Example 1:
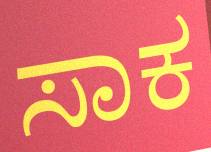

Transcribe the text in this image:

ಸಾಕ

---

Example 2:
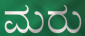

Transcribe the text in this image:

ಮರು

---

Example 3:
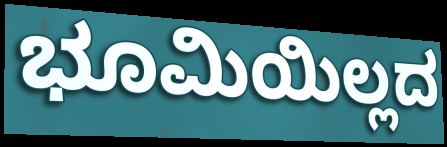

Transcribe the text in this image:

ಭೂಮಿಯಿಲ್ಲದ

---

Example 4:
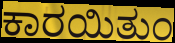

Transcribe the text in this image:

ಕಾರಯಿತುಂ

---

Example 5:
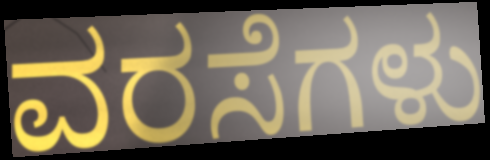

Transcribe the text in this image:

ವರಸೆಗಳು